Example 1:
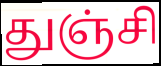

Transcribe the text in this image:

துஞ்சி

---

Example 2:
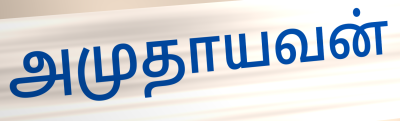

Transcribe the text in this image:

அமுதாயவன்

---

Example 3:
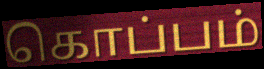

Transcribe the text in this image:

கொப்பம்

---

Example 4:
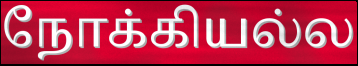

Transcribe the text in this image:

நோக்கியல்ல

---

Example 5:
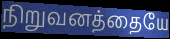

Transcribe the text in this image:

நிறுவனத்தையே